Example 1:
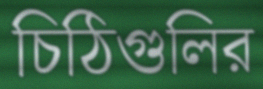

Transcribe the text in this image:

চিঠিগুলির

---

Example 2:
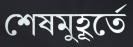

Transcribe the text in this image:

শেষমুহূর্তে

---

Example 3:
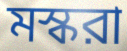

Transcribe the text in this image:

মস্করা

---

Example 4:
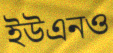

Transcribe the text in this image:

ইউএনও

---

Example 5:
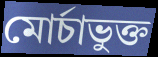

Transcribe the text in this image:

মোর্চাভুক্ত